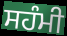
ਸਹੰਮੀ